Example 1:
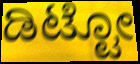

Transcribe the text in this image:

ಡಿಟ್ಟೋ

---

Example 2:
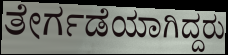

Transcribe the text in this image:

ತೇರ್ಗಡೆಯಾಗಿದ್ದರು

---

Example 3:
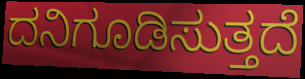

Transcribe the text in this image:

ದನಿಗೂಡಿಸುತ್ತದೆ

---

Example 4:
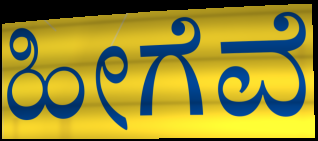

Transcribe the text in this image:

ಹೀಗೆವೆ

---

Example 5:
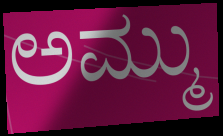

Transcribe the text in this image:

ಅಮ್ಮು